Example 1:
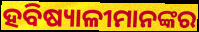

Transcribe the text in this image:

ହବିଷ୍ୟାଳୀମାନଙ୍କର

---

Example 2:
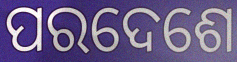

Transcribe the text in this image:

ପରଦେଶେ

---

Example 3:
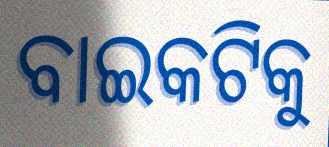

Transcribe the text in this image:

ବାଇକଟିକୁ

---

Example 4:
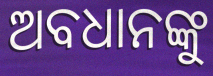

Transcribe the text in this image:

ଅବଧାନଙ୍କୁ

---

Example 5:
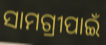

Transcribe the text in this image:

ସାମଗ୍ରୀପାଇଁ